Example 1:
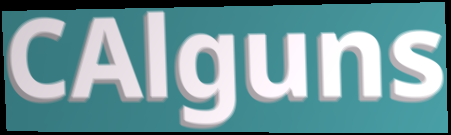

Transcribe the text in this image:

CAlguns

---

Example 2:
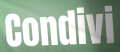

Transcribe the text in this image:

Condivi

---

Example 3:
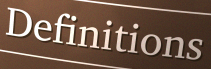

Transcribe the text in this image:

Definitions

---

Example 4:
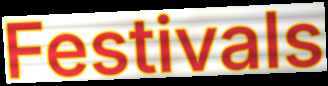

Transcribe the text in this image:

Festivals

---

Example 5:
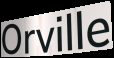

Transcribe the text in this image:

Orville